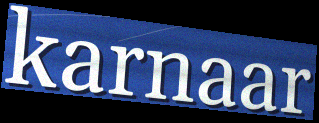
karnaar